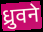
ध्रुवने